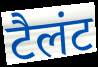
टैलंट